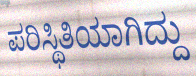
ಪರಿಸ್ಥಿತಿಯಾಗಿದ್ದು